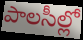
పాలసీల్లో